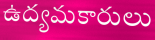
ఉద్యమకారులు